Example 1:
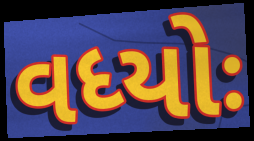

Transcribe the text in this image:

વધ્યોઃ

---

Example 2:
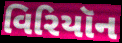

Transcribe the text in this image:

વિરિયૉન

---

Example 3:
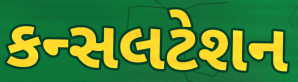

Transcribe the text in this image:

કન્સલટેશન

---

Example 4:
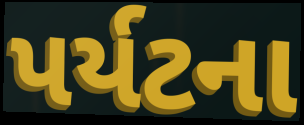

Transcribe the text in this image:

પર્યટના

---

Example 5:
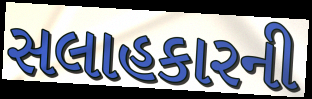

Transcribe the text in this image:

સલાહકારની